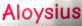
Aloysius